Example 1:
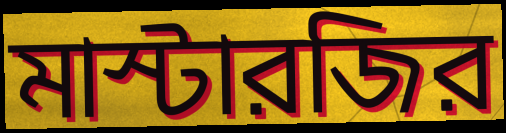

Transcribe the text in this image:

মাস্টারজির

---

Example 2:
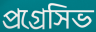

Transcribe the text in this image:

প্রগ্রেসিভ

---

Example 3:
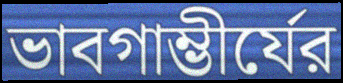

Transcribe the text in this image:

ভাবগাম্ভীর্যের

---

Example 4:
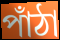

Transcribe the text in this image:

পাঁঠা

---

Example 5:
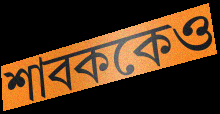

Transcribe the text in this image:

শাবককেও